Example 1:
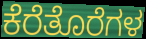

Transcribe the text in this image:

ಕೆರೆತೊರೆಗಳ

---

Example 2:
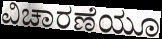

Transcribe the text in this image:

ವಿಚಾರಣೆಯೂ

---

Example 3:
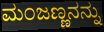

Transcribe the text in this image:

ಮಂಜಣ್ಣನನ್ನು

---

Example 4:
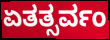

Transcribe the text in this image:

ಏತತ್ಸರ್ವಂ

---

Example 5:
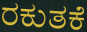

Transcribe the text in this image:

ರಕುತಕೆ